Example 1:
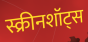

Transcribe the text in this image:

स्क्रीनशॉट्स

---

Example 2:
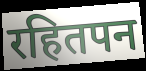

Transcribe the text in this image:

रहितपन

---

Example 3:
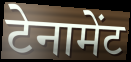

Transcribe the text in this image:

टेनामेंट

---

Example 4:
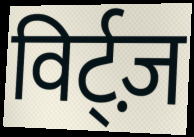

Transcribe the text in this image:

विर्ट्ज़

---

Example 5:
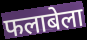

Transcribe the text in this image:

फलाबेला